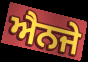
ਐਨਜੇ